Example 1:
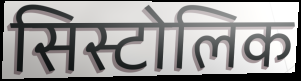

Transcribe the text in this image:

सिस्टोलिक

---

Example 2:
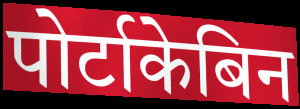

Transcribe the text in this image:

पोर्टाकेबिन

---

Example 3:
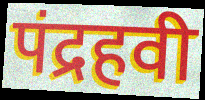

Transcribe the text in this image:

पंद्रहवी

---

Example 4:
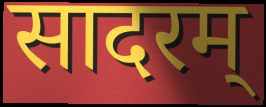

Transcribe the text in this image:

सादरम्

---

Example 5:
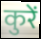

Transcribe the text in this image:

कुरें